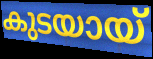
കുടയായ്